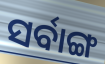
ସର୍ବାଙ୍ଗ